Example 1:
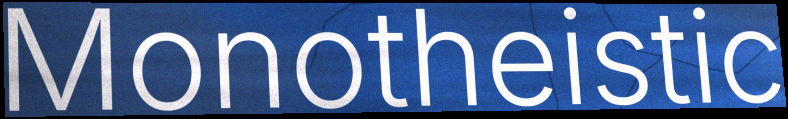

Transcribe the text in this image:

Monotheistic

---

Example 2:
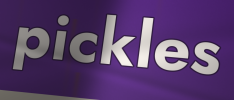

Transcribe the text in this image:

pickles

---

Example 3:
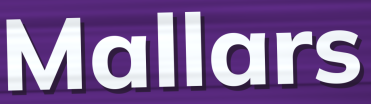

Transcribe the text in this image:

Mallars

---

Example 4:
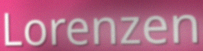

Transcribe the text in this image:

Lorenzen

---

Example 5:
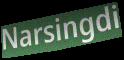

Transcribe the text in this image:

Narsingdi